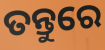
ତନ୍ତୁରେ